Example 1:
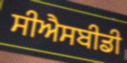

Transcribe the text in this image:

ਸੀਐਸਬੀਡੀ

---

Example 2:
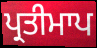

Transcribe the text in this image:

ਪ੍ਰਤੀਮਾਪ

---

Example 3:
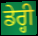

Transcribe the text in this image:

ਡੇਰ੍ਹੀ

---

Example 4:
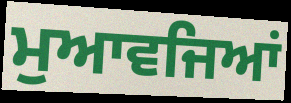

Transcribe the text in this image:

ਮੁਆਵਜਿਆਂ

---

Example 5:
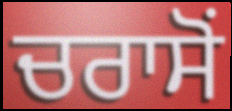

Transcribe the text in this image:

ਚਰਾਸੋਂ